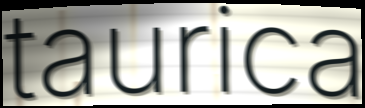
taurica